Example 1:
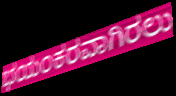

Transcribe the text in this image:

ಭಯಂಕರವಾಗಿರಲು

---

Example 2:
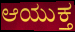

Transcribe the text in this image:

ಆಯುಕ್ತ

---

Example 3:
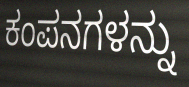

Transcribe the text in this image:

ಕಂಪನಗಳನ್ನು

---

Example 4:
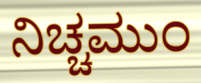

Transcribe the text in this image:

ನಿಚ್ಚಮುಂ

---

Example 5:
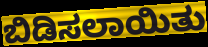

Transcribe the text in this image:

ಬಿಡಿಸಲಾಯಿತು